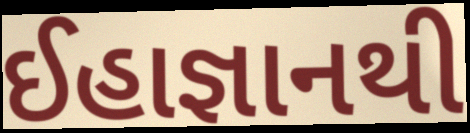
ઈહાજ્ઞાનથી